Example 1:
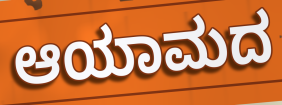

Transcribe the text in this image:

ಆಯಾಮದ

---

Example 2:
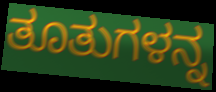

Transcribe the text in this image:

ತೂತುಗಳನ್ನ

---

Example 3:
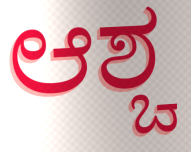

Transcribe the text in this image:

ಆಶ್ಚ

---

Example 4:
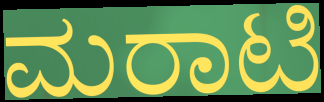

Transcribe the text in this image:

ಮರಾಟಿ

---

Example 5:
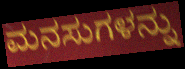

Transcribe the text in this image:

ಮನಸುಗಳನ್ನು